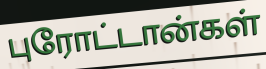
புரோட்டான்கள்